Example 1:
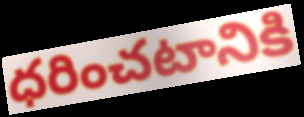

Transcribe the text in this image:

ధరించటానికి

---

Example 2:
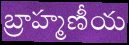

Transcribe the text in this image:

బ్రాహ్మణీయ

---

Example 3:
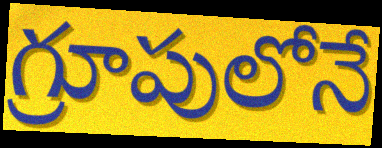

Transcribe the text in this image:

గ్రూపులోనే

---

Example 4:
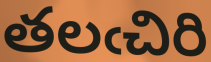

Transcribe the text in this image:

తలఁచిరి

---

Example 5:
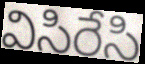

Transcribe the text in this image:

విసిరేసి